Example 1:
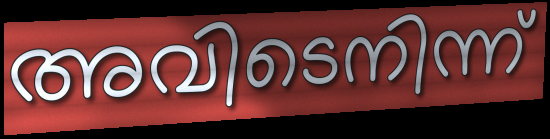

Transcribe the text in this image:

അവിടെനിന്ന്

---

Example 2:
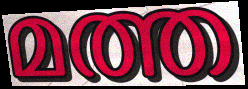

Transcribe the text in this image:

മത്ത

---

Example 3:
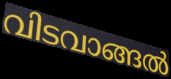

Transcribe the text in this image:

വിടവാങ്ങൽ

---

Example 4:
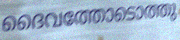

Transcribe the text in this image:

ദൈവത്തോടൊത്തു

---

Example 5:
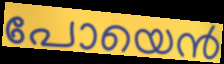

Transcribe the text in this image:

പോയെൻ